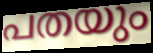
പതയും